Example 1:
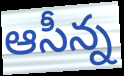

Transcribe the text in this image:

ఆసీన్న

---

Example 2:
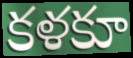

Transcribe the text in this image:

కళకూ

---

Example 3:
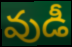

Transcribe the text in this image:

వుడీ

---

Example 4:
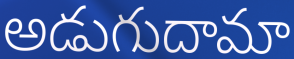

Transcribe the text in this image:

అడుగుదామా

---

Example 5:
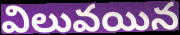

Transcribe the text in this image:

విలువయిన